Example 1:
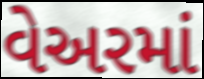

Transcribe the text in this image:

વેઅરમાં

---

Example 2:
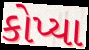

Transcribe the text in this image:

કોપ્યા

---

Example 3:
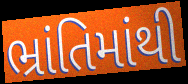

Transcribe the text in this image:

ભ્રાંતિમાંથી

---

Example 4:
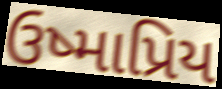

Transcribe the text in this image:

ઉષ્માપ્રિય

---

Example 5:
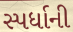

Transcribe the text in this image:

સ્પર્ધાની